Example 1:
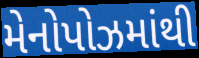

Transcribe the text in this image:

મેનોપોઝમાંથી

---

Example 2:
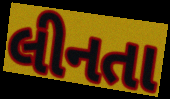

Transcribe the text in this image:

લીનતા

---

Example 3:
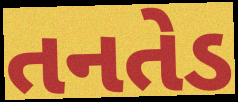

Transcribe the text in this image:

તનતેડ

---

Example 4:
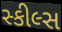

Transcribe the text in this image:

સ્કીલ્સ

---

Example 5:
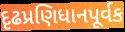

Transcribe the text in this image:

દૃઢપ્રણિધાનપૂર્વક